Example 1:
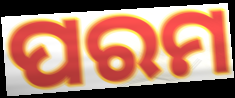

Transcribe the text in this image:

ପରମ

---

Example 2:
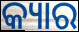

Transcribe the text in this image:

କ୍ୟାର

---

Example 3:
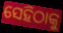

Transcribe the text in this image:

ସେହିଠାକୁ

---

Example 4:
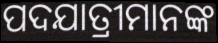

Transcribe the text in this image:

ପଦଯାତ୍ରୀମାନଙ୍କ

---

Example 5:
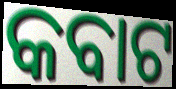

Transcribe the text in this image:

କବାଟ